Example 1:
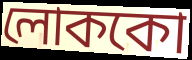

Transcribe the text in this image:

লোককো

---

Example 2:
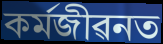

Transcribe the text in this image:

কৰ্মজীৱনত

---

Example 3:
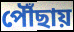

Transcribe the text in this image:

পৌঁছায়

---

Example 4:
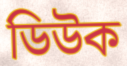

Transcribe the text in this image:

ডিউক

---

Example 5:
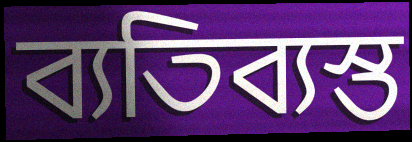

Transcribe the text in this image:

ব্যতিব্যস্ত